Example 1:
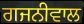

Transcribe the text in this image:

ਗਜਨੀਵਾਲ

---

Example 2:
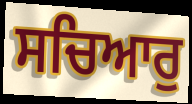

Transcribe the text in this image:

ਸਚਿਆਰੁ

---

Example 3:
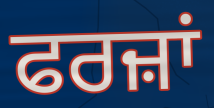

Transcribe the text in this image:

ਫਰਜ਼ਾਂ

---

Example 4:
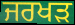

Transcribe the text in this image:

ਜਰਖੜ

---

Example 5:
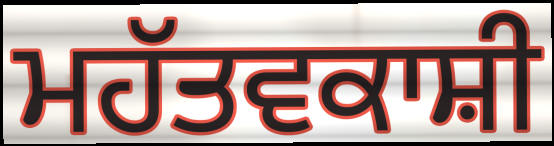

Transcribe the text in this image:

ਮਹੱਤਵਕਾਸ਼ੀ